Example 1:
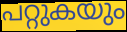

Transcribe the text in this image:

പറ്റുകയും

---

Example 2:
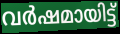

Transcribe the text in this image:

വർഷമായിട്ട്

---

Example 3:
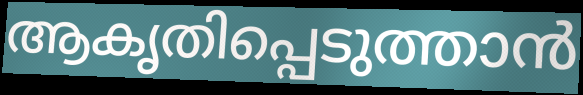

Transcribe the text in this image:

ആകൃതിപ്പെടുത്താൻ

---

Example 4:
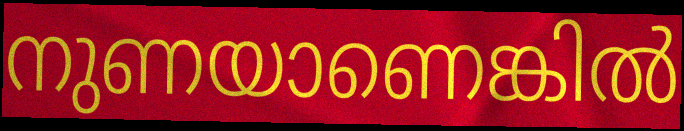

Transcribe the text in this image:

നുണയാണെങ്കിൽ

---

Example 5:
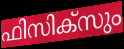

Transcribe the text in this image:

ഫിസിക്സും